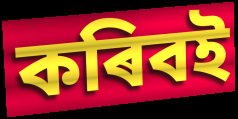
কৰিবই